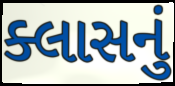
ક્લાસનું